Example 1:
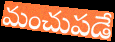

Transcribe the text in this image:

మంచుపడే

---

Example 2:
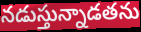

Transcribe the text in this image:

నడుస్తున్నాడతను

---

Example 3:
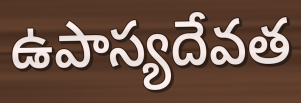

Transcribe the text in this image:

ఉపాస్యదేవత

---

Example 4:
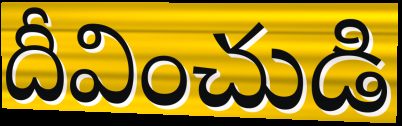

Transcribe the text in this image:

దీవించుడి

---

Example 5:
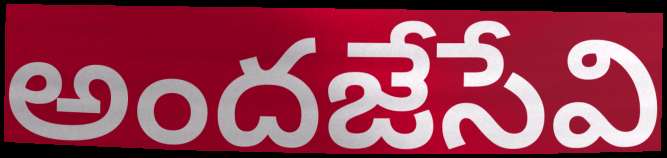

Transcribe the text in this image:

అందజేసేవి